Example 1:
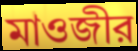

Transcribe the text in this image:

মাওজীর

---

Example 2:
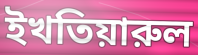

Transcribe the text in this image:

ইখতিয়ারুল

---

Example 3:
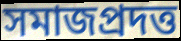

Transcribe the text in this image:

সমাজপ্রদত্ত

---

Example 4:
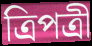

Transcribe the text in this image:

ত্রিপত্রী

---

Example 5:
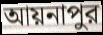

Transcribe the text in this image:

আয়নাপুর